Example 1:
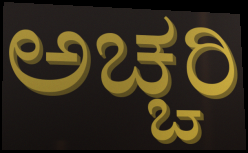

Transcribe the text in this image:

ಅಚ್ಚರಿ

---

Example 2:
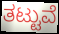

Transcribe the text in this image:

ತಟ್ಟುವೆ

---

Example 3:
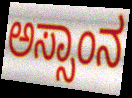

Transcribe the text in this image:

ಅಸ್ಸಾಂನ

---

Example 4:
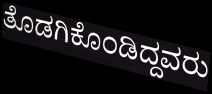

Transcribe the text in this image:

ತೊಡಗಿಕೊಂಡಿದ್ದವರು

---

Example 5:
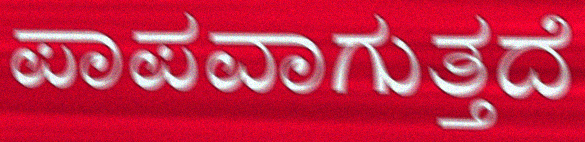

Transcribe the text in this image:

ಪಾಪವಾಗುತ್ತದೆ